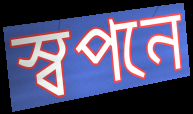
স্বপনে